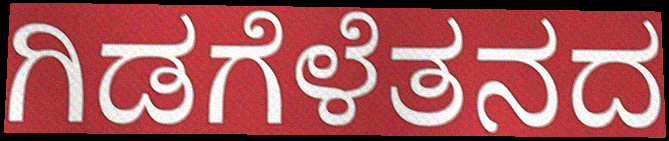
ಗಿಡಗೆಳೆತನದ